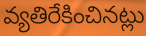
వ్యతిరేకించినట్లు